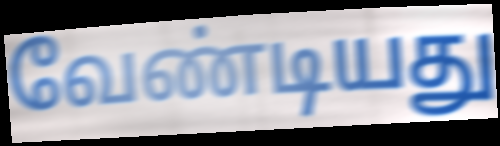
வேண்டியது